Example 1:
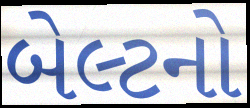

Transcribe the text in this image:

બેલ્ટનો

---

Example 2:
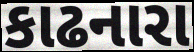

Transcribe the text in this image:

કાઢનારા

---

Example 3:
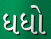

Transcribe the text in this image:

ધધો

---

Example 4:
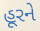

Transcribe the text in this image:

હૂરને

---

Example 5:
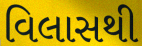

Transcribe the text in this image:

વિલાસથી